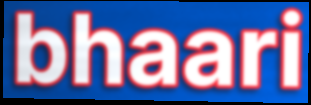
bhaari